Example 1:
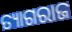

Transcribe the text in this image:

ତ୍ୟାଗରାଜ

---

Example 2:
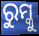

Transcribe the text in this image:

ରୁମ୍କୁ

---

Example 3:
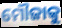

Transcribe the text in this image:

ମୌଜାକୁ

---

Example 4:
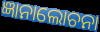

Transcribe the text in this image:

ଜ୍ଞାନାଲୋଚନା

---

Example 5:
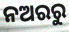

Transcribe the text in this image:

ନଅରରୁ